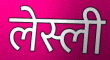
लेस्ली